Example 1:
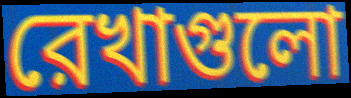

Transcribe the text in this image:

রেখাগুলো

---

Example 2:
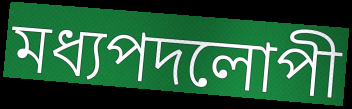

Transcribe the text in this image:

মধ্যপদলোপী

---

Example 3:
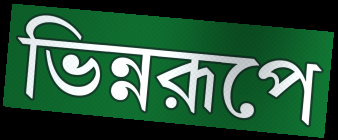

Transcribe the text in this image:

ভিন্নরূপে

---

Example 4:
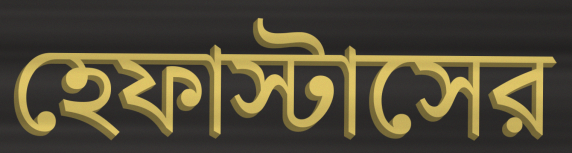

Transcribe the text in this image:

হেফাস্টাসের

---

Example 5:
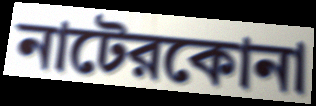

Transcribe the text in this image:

নাটেরকোনা